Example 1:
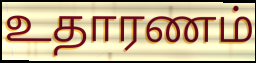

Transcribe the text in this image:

உதாரணம்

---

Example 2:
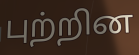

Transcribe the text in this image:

புற்றின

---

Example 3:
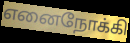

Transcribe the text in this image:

எனைநோக்கி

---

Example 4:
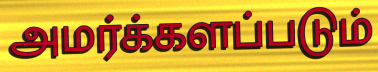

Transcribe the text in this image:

அமர்க்களப்படும்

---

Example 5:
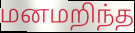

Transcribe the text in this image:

மனமறிந்த